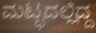
ಮಟ್ಟದಲ್ಲಿದ್ದ